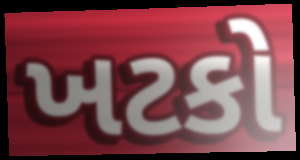
ખટકો